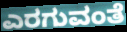
ಎರಗುವಂತೆ